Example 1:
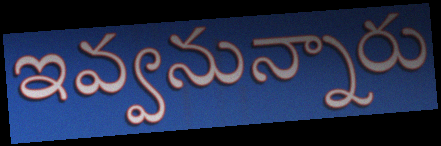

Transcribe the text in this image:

ఇవ్వనున్నారు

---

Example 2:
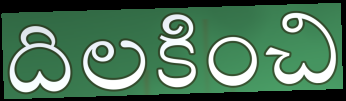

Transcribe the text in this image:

దిలకించి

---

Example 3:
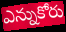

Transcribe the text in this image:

ఎన్నుకోరు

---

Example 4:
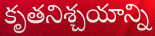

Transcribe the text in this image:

కృతనిశ్చయాన్ని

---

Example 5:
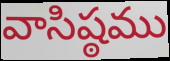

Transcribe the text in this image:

వాసిష్ఠము